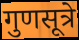
गुणसूत्रे